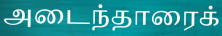
அடைந்தாரைக்